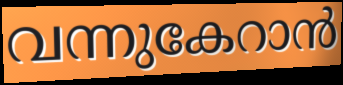
വന്നുകേറാൻ